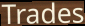
Trades